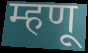
म्हणू